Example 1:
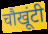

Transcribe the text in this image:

चौखूंटी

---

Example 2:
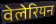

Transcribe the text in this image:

वेलेरियन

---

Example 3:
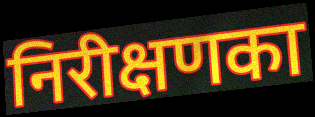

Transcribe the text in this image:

निरीक्षणका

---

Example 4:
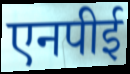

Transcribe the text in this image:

एनपीई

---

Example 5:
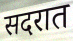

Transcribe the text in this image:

सदरात